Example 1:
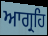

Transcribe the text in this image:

ਆਗ੍ਰਹਿ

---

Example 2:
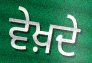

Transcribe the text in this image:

ਵੇਖ਼ਦੇ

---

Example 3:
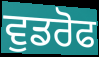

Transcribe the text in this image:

ਵੁਡਰੋਫ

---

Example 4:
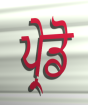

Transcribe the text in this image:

ਪ੍ਰੇਡੋ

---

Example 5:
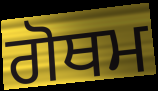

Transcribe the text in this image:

ਗੋਥਮ